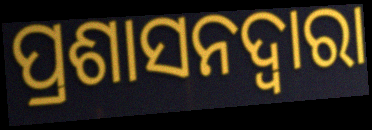
ପ୍ରଶାସନଦ୍ୱାରା